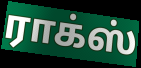
ராக்ஸ்